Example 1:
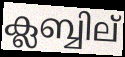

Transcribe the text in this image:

ക്ലബ്ബില്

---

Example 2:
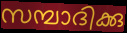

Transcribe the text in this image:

സമ്പാദിക്കു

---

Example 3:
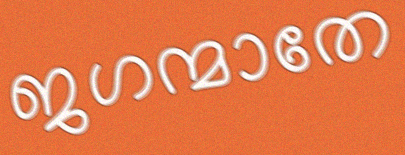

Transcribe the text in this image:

ജഗന്മാതേ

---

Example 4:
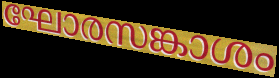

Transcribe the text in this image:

ഘോരസങ്കാശം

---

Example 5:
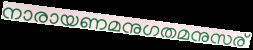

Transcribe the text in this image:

നാരായണമനുഗതമനുസര്